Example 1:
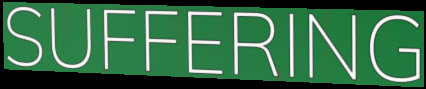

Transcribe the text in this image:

SUFFERING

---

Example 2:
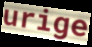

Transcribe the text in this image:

urige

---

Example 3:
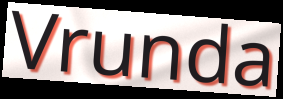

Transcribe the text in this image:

Vrunda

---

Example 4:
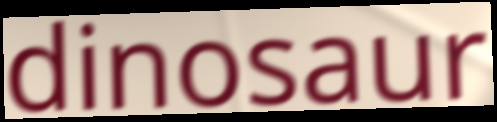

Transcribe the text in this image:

dinosaur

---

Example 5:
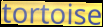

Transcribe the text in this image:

tortoise